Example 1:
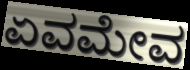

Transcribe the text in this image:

ಏವಮೇವ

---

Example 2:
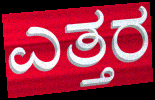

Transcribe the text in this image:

ಎತ್ತರ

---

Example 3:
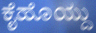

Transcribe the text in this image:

ಕೈಹೊಯ್ದು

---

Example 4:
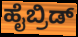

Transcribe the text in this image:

ಹೈಬ್ರಿಡ್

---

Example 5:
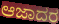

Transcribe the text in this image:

ಆಜಾದರ